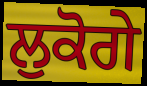
ਲੁਕੋਗੇ